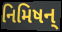
નિમિષન્